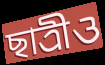
ছাত্রীও